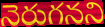
నెరుగనని